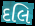
દલિ